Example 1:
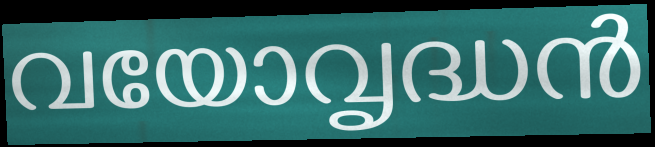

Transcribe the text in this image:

വയോവൃദ്ധൻ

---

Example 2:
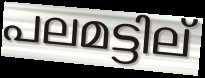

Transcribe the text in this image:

പലമട്ടില്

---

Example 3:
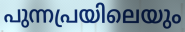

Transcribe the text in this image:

പുന്നപ്രയിലെയും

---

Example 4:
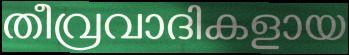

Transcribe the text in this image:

തീവ്രവാദികളായ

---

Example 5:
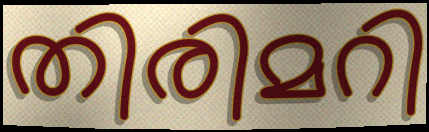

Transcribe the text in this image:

തിരിമറി